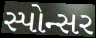
સ્પોન્સર